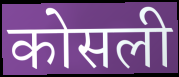
कोसली